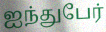
ஐந்துபேர்